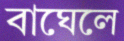
বাঘেলে